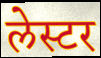
लेस्टर